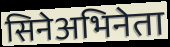
सिनेअभिनेता